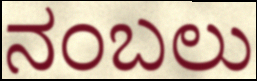
ನಂಬಲು